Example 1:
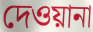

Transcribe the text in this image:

দেওয়ানা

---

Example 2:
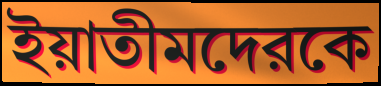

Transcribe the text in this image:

ইয়াতীমদেরকে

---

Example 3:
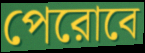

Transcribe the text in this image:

পেরোবে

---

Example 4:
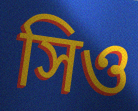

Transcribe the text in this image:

সিও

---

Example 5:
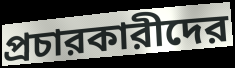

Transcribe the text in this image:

প্রচারকারীদের